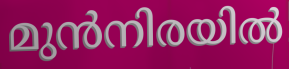
മുൻനിരയിൽ